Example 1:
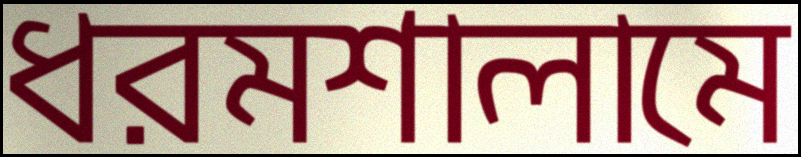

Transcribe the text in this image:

ধরমশালামে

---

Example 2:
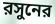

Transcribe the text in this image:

রসুনের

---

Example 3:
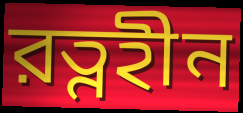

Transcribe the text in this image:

রত্নহীন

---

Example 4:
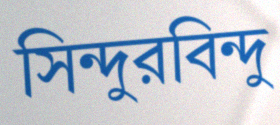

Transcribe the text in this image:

সিন্দুরবিন্দু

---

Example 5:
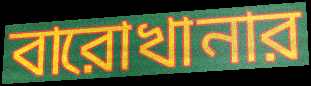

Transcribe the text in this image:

বারোখানার